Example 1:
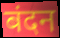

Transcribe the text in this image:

बंदन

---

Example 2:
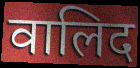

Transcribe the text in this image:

वालिद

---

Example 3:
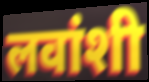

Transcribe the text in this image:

लवांशी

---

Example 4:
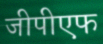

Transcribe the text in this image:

जीपीएफ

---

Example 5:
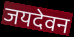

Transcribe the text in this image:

जयदेवन